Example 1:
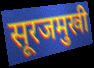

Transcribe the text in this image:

सूरजमुखी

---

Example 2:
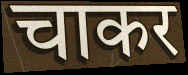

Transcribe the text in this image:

चाकर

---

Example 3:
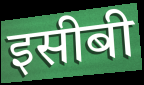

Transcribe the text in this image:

इसीबी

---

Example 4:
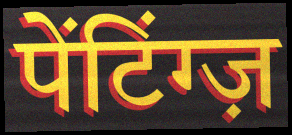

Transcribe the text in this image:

पेंटिंग्ज़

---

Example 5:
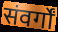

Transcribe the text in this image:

संवर्गों